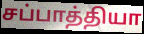
சப்பாத்தியா